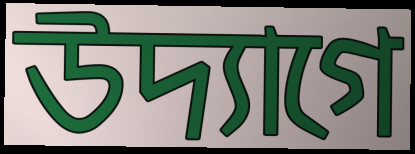
উদ্যাগে